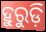
ହୁରୁଡ଼ି